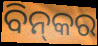
ବିନ୍‌କର